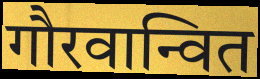
गौरवान्वित